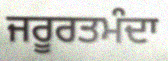
ਜਰੂਰਤਮੰਦਾ